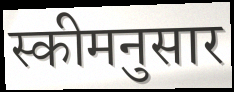
स्कीमनुसार